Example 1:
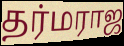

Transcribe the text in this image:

தர்மராஜ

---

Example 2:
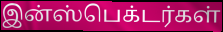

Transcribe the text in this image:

இன்ஸ்பெக்டர்கள்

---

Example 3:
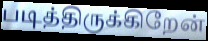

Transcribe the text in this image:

படித்திருக்கிறேன்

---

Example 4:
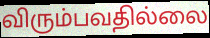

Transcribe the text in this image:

விரும்பவதில்லை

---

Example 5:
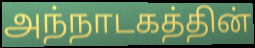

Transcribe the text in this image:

அந்நாடகத்தின்